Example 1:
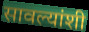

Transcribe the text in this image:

सावल्यांशी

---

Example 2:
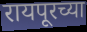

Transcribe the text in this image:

रायपूरच्या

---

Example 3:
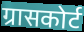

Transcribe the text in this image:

ग्रासकोर्ट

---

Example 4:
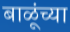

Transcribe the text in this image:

बाळूंच्या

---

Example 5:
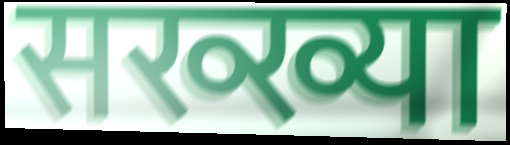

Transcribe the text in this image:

सख्ख्या